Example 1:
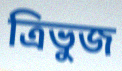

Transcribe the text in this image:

ত্ৰিভুজ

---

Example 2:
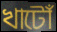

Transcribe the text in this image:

খাটোঁ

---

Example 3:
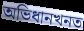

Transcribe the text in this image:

অভিধানখনত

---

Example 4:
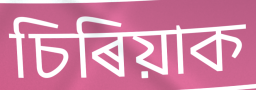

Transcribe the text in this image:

চিৰিয়াক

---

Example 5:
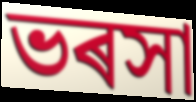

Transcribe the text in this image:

ভৰসা